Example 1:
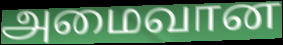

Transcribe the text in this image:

அமைவான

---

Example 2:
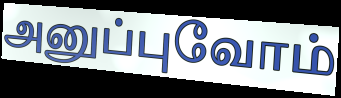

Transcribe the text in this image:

அனுப்புவோம்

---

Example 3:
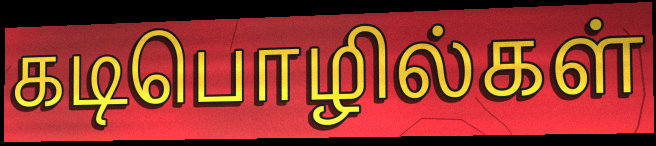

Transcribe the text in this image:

கடிபொழில்கள்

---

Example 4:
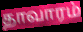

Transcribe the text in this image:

தாவாரம்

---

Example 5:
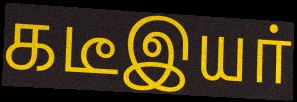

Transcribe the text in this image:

கடீஇயர்